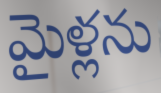
మైళ్లను